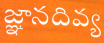
జ్ఞానదివ్య